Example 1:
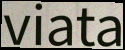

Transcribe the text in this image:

viata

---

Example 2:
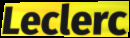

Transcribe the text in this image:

Leclerc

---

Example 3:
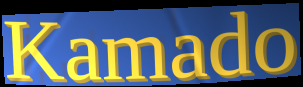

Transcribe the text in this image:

Kamado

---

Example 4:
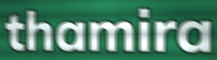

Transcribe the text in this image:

thamira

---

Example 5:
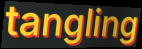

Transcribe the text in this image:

tangling